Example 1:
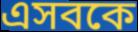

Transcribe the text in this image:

এসবকে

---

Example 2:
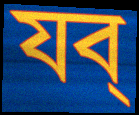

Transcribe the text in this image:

যব্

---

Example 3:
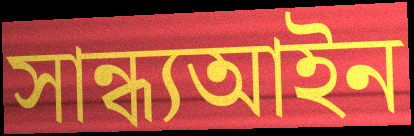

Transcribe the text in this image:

সান্ধ্যআইন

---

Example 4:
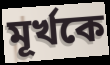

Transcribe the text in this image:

মূর্খকে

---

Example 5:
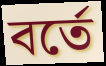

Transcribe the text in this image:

বর্তে